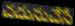
చదునుచేసే